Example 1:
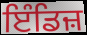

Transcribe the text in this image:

ਇੰਡਿਜ਼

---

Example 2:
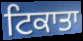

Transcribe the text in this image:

ਟਿਕਾਤਾ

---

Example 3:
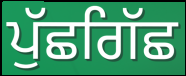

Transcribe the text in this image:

ਪੁੱਛਗਿੱਛ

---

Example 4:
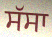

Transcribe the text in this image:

ਸੱਸਾ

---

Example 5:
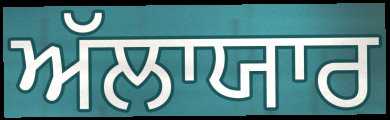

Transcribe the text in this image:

ਅੱਲਾਯਾਰ